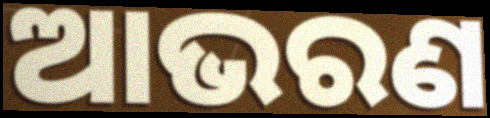
ଆଭରଣ